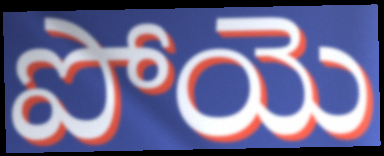
పోయె